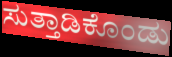
ಸುತ್ತಾಡಿಕೊಂಡು